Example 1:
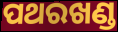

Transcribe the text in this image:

ପଥରଖଣ୍ଡ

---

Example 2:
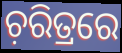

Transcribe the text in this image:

ଚ଼ରିତ୍ରରେ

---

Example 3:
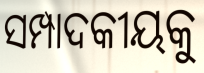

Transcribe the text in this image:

ସମ୍ପାଦକୀୟକୁ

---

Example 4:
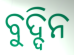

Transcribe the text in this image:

ବୁଦ୍ଦିନ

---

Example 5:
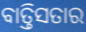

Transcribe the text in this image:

ବାତ୍ତିସତାର